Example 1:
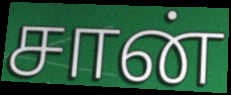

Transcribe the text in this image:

சான்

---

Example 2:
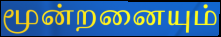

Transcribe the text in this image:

மூன்றனையும்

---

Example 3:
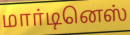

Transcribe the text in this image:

மார்டினெஸ்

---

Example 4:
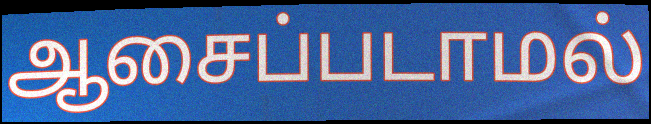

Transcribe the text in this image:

ஆசைப்படாமல்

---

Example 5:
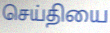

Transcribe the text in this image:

செய்தியை